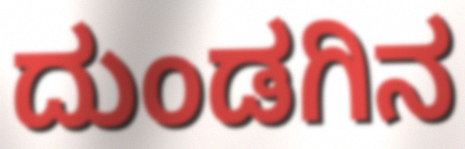
ದುಂಡಗಿನ